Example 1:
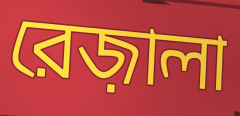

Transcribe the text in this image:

রেজ়ালা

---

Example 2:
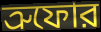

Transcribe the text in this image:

ত্রুফোর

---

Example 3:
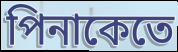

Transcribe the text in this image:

পিনাকেতে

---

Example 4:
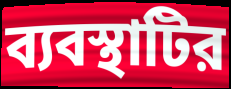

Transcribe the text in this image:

ব্যবস্থাটির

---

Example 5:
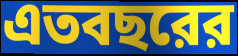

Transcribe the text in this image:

এতবছরের